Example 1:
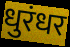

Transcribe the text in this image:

धुरंधर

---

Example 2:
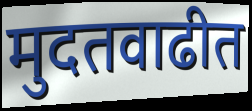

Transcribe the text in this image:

मुदतवाढीत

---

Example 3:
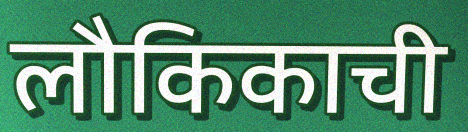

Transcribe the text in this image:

लौकिकाची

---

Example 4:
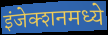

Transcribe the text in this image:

इंजेक्शनमध्ये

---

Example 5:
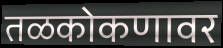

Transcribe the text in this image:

तळकोकणावर